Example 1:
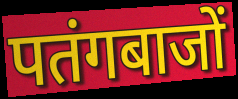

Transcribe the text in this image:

पतंगबाजों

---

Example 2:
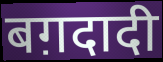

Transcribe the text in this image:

बग़दादी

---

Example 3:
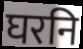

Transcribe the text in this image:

घरनि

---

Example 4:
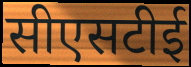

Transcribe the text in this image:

सीएसटीई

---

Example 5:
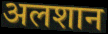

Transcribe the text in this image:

अलशान